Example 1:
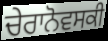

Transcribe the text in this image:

ਚੇਰਾਨੋਵਸਕੀ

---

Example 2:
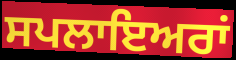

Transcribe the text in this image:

ਸਪਲਾਇਅਰਾਂ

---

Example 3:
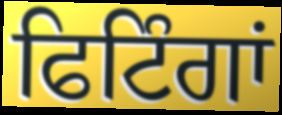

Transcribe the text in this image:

ਫਿਟਿੰਗਾਂ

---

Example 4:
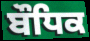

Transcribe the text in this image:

ਬੌਧਿਕ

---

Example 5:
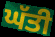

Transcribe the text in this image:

ਘੱਤੀ